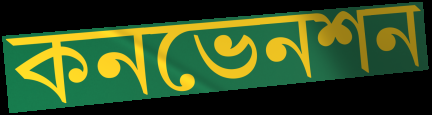
কনভেনশন